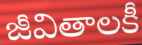
జీవితాలకీ